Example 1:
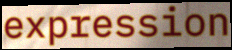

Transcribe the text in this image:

expression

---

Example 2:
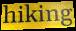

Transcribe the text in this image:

hiking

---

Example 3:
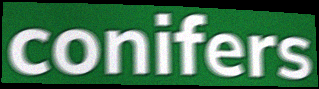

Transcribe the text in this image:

conifers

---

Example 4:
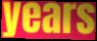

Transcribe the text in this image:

years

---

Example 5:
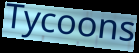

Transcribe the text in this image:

Tycoons